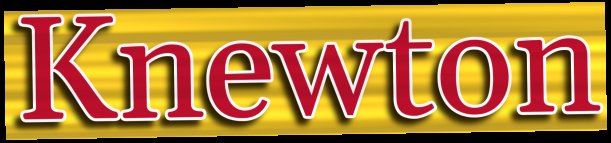
Knewton